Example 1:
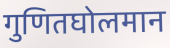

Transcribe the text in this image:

गुणितघोलमान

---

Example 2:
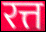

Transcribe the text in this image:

रत्त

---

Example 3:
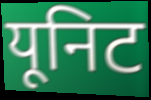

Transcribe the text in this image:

यूनिट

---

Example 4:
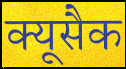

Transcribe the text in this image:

क्यूसैक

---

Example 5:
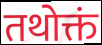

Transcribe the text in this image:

तथोक्तं